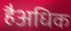
हैअधिक